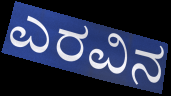
ಎರವಿನ